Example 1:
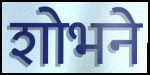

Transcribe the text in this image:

शोभने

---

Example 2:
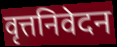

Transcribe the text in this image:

वृत्तनिवेदन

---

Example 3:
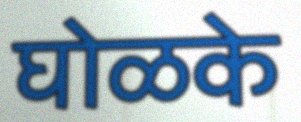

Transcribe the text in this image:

घोळके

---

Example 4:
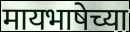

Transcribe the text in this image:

मायभाषेच्या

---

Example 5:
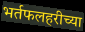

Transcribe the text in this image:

भर्तफलहरीच्या